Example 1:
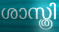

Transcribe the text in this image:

ശാസ്ത്രി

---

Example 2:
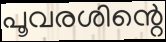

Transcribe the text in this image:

പൂവരശിന്റെ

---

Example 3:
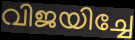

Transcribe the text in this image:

വിജയിച്ചേ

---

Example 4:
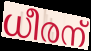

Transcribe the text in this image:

ധീരന്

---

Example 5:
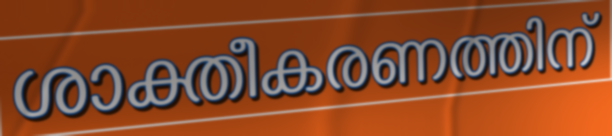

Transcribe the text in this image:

ശാക്തീകരണത്തിന്